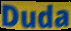
Duda